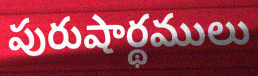
పురుషార్థములు